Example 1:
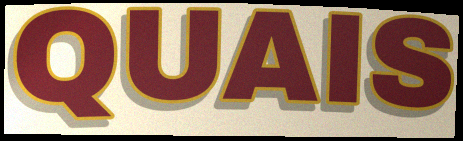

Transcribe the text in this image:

QUAIS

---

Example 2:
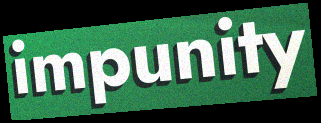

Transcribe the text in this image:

impunity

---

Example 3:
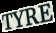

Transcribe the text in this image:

TYRE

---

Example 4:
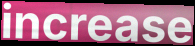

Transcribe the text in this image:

increase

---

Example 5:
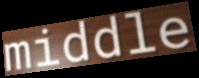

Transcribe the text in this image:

middle